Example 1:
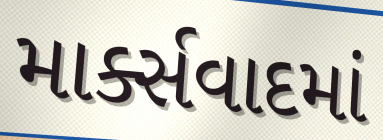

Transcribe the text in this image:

માર્ક્સવાદમાં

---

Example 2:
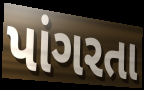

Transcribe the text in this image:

પાંગરતા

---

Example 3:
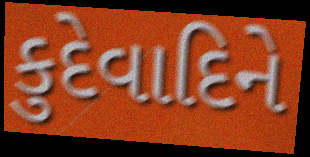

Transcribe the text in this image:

કુદેવાદિને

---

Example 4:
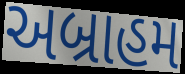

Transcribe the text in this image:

અબ્રાહમ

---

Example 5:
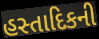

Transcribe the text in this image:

હસ્તાદિકની